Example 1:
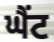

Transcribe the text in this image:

ਘੈਂਟ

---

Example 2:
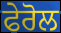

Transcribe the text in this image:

ਫੇਰੋਲ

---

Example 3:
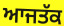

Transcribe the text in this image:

ਆਜਤੱਕ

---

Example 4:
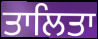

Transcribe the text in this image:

ਤਾਲਿਤਾ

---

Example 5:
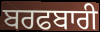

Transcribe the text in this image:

ਬਰਫਬਾਰੀ